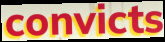
convicts